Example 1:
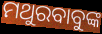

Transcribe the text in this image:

ମଥୁରବାବୁଙ୍କ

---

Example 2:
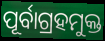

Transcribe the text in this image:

ପୂର୍ବାଗ୍ରହମୁକ୍ତ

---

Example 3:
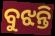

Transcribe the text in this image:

ବୁଝନ୍ତି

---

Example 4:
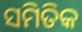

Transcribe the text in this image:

ସମିତିକ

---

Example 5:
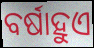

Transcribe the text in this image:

ବର୍ଷାହୁଏ